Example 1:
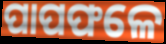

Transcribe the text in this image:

ପାପଫଳେ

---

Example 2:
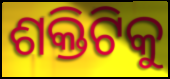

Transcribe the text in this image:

ଶକ୍ତିଟିକୁ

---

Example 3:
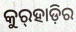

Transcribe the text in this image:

କୁର୍‍ହାଡ଼ିର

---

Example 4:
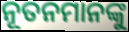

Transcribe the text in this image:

ନୂତନମାନଙ୍କୁ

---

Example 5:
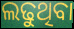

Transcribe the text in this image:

ଲଢୁଥିବା